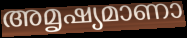
അമൃഷ്യമാണാ